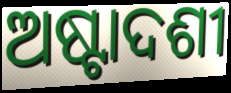
ଅଷ୍ଟାଦଶୀ